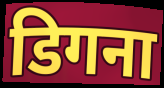
डिगना